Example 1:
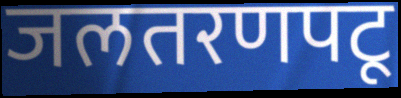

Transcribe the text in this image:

जलतरणपटू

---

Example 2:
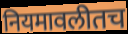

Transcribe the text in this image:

नियमावलीतच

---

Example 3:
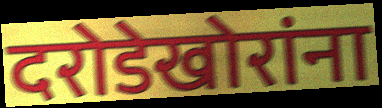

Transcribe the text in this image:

दरोडेखोरांना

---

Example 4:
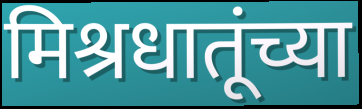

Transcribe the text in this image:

मिश्रधातूंच्या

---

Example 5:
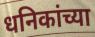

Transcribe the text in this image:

धनिकांच्या